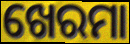
ଖେରମା